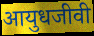
आयुधजीवी